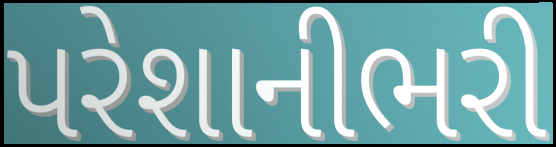
પરેશાનીભરી